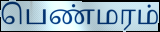
பெண்மரம்